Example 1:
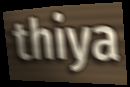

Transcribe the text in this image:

thiya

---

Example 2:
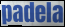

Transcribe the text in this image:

padela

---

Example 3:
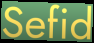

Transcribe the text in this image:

Sefid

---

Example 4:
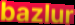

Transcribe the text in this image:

bazlur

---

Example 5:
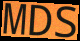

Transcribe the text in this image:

MDS